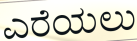
ಎರೆಯಲು